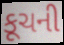
કૂચની